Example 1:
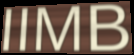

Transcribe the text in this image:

IIMB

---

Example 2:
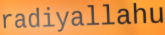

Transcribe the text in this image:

radiyallahu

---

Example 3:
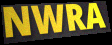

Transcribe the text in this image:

NWRA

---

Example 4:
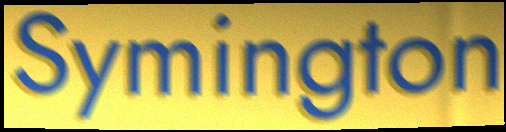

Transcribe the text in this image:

Symington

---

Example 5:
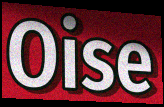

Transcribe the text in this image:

Oise